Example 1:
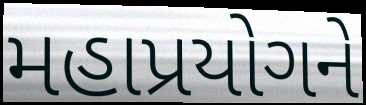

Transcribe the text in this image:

મહાપ્રયોગને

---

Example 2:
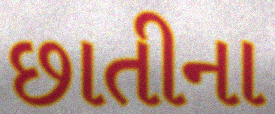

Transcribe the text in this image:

છાતીના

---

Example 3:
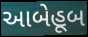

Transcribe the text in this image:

આબેહૂબ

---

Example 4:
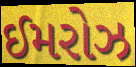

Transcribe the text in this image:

ઈમરોઝ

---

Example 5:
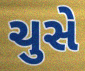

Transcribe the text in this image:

ચુસે